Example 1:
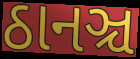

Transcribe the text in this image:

ઠાનઞ્ચ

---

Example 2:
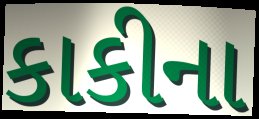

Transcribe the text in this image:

કાકીના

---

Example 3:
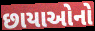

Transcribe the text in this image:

છાયાઓનો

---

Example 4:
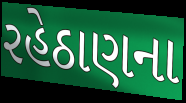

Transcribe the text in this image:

રહેઠાણના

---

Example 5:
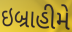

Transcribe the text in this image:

ઇબ્રાહીમે